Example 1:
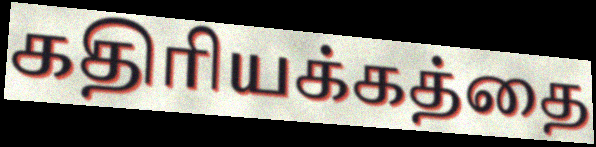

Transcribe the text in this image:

கதிரியக்கத்தை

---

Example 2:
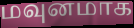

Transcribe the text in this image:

மவுனமாக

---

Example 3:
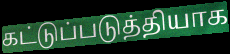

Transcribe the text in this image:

கட்டுப்படுத்தியாக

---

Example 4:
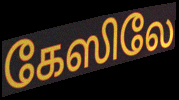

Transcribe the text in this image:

கேஸிலே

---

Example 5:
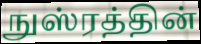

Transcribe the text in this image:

நுஸ்ரத்தின்